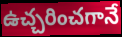
ఉచ్చరించగానే